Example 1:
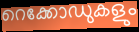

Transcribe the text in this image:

റെക്കോഡുകളും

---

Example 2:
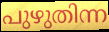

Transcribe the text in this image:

പുഴുതിന്ന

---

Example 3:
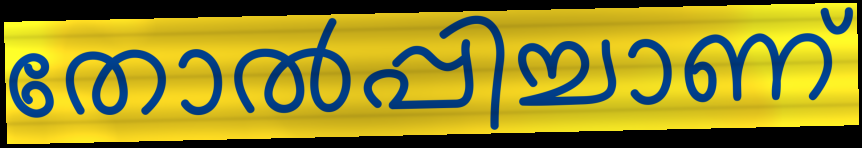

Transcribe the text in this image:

തോൽപ്പിച്ചാണ്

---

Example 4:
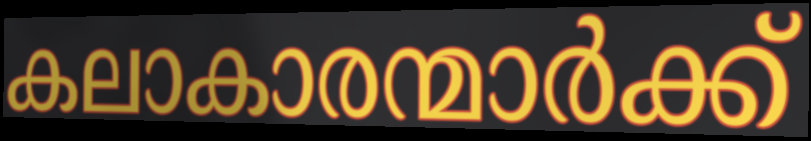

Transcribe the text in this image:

കലാകാരന്മാർക്ക്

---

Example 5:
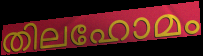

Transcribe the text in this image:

തിലഹോമം